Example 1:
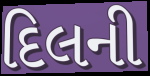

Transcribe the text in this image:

દિલની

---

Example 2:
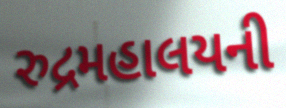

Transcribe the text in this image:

રુદ્રમહાલયની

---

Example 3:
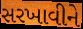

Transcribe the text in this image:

સરખાવીને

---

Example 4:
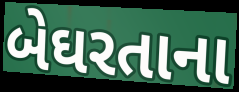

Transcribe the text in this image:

બેઘરતાના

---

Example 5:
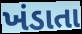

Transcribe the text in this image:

ખંડાતા